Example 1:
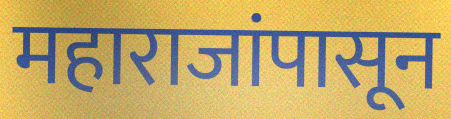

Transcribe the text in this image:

महाराजांपासून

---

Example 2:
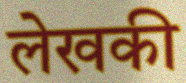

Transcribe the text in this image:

लेखकी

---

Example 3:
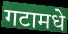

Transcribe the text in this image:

गटामधे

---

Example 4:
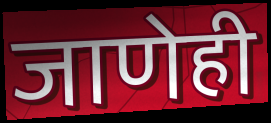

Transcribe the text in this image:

जाणेही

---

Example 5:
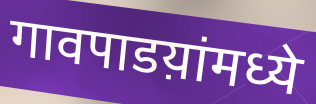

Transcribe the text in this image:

गावपाडय़ांमध्ये